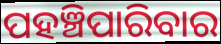
ପହଞ୍ଚିପାରିବାର